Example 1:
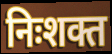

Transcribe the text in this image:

निःशक्त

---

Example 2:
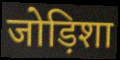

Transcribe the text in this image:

जोड़िशा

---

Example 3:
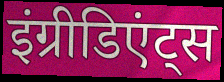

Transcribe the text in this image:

इंग्रीडिएंट्स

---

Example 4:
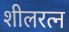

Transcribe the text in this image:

शीलरत्न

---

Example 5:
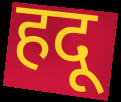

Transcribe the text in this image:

हदू